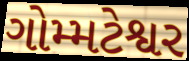
ગોમ્મટેશ્વર